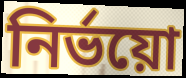
নির্ভয়ো